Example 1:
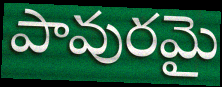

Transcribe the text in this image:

పావురమై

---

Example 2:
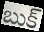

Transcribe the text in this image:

బుక్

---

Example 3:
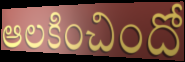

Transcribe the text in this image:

ఆలకించిందో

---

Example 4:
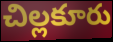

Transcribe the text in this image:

చిల్లకూరు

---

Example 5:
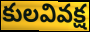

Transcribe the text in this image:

కులవివక్ష